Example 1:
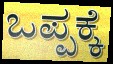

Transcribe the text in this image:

ಒಪ್ಪಕ್ಕೆ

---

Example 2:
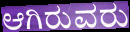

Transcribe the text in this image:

ಆಗಿರುವರು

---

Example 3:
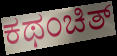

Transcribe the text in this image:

ಕಥಂಚಿತ್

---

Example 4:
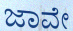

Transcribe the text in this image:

ಜಾವೇ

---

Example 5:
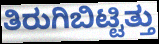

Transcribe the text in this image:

ತಿರುಗಿಬಿಟ್ಟಿತ್ತು